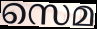
സെമ